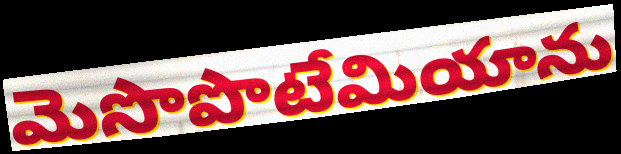
మెసొపొటేమియాను